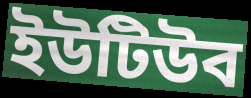
ইউটিউব